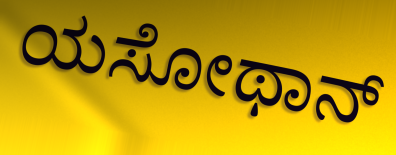
ಯಸೋಥಾನ್